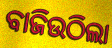
ବାଜିଉଠିଲା